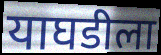
याघडीला